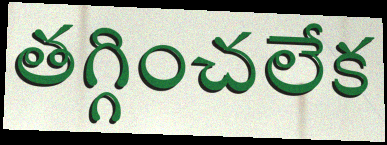
తగ్గించలేక